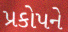
પ્રકોપને